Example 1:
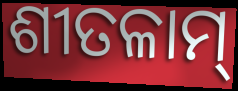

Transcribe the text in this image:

ଶୀତଳାମ୍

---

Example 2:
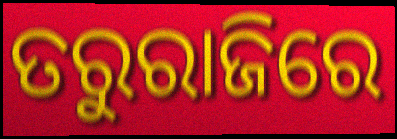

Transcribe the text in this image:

ତରୁରାଜିରେ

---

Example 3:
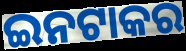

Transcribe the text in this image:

ଇନଟାକର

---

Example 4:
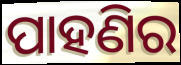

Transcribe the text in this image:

ପାହଣିର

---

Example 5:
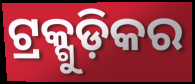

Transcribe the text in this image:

ଟ୍ରକ୍ଗୁଡ଼ିକର